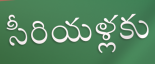
సీరియళ్లకు